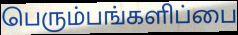
பெரும்பங்களிப்பை